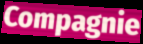
Compagnie